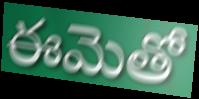
ఈమెతో